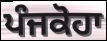
ਪੰਜਕੋਹਾ